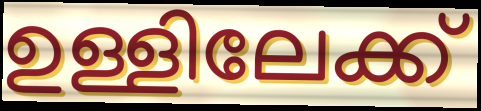
ഉള്ളിലേക്ക്